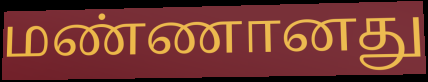
மண்ணானது